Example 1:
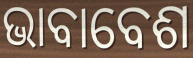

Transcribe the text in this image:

ଭାବାବେଶ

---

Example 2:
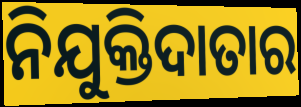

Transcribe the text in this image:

ନିଯୁକ୍ତିଦାତାର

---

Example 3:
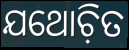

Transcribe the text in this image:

ଯଥୋଚ଼ିତ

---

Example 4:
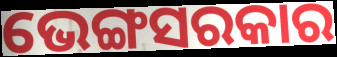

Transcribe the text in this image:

ଭେଙ୍ଗସରକାର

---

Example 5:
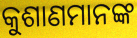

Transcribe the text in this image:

କୁଶାଣମାନଙ୍କ